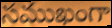
సముఖంగా